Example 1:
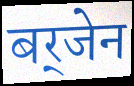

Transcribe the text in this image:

बर्जेन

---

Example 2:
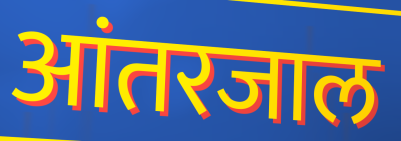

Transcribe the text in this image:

आंतरजाल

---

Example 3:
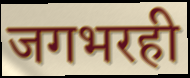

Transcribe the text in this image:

जगभरही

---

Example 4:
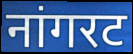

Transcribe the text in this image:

नांगरट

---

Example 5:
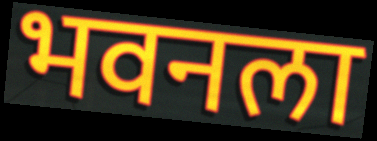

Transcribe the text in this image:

भवनला